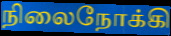
நிலைநோக்கி